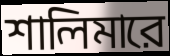
শালিমারে